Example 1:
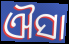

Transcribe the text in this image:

ଐସା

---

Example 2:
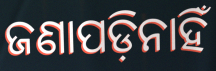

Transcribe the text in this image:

ଜଣାପଡ଼ିନାହିଁ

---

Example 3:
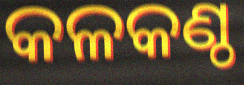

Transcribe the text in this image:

କଳକଣ୍ଠ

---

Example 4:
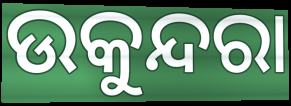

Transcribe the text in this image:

ଉକୁନ୍ଦରା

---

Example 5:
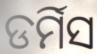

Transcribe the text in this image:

ଡର୍ମିସ